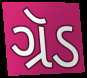
ગ્રૅડ